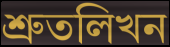
শ্রুতলিখন